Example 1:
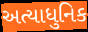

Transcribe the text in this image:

અત્યાધુનિક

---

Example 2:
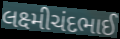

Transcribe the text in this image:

લક્ષ્મીચંદભાઈ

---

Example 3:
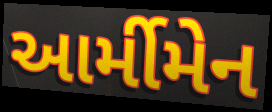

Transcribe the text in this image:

આર્મીમેન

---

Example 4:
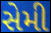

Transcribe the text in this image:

સેમી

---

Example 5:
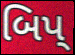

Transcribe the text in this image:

બિપ્